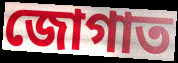
জোগাত